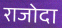
राजोदा